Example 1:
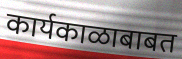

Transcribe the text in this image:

कार्यकाळाबाबत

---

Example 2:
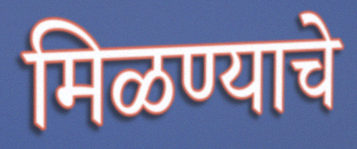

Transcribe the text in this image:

मिळण्याचे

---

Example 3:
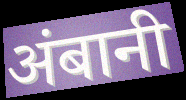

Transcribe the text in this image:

अंबानी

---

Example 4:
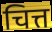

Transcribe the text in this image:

चित्त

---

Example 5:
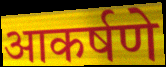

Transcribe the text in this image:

आकर्षणे